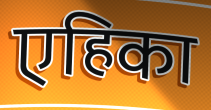
एहिका